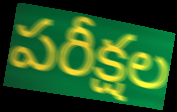
పరీక్షల